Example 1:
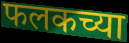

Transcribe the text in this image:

फलकच्या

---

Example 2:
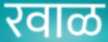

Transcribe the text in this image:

रवाळ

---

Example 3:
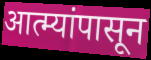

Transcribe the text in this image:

आत्म्यांपासून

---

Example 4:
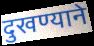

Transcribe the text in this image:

दुखण्याने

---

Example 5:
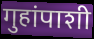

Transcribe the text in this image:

गुहांपाशी